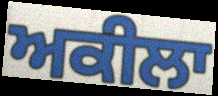
ਅਕੀਲਾ